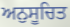
ਅਨੁਸੂਚਿਤ